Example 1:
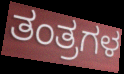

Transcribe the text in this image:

ತಂತ್ರಗಳ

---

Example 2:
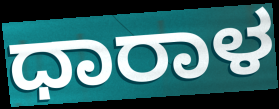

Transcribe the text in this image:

ಧಾರಾಳ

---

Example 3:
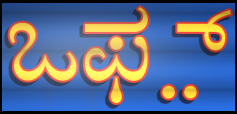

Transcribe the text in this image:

ಒಫ಼್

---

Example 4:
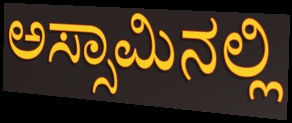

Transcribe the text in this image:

ಅಸ್ಸಾಮಿನಲ್ಲಿ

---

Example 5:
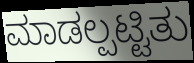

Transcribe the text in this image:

ಮಾಡಲ್ಪಟ್ಟಿತು